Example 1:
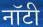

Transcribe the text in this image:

नॉटी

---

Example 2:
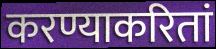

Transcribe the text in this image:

करण्याकरितां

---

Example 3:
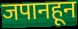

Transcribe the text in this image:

जपानहून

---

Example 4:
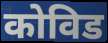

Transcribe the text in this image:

कोविड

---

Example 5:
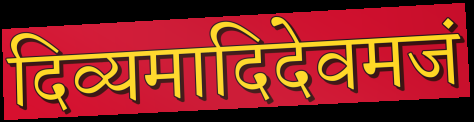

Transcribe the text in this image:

दिव्यमादिदेवमजं